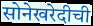
सोनेखरेदीची